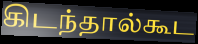
கிடந்தால்கூட